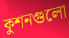
কুশনগুলো